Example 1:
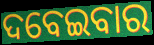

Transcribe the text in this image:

ଦବେଇବାର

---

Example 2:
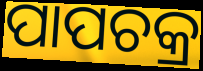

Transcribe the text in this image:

ପାପଚକ୍ର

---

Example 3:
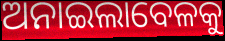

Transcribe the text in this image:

ଅନାଇଲାବେଳକୁ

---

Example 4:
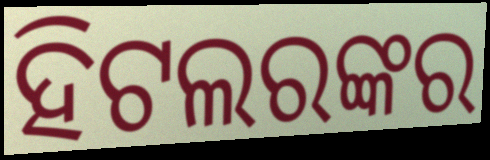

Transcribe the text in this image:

ହିଟଲରଙ୍କର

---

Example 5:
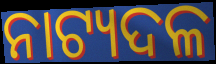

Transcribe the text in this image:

ନାଟ୍ୟଦଳ